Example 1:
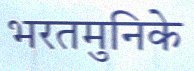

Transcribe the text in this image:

भरतमुनिके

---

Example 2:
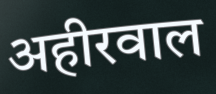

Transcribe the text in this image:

अहीरवाल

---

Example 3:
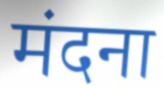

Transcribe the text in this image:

मंदना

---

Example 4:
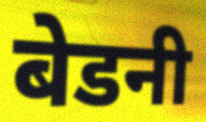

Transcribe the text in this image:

बेडनी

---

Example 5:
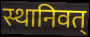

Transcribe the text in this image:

स्थानिवत्